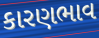
કારણભાવ